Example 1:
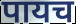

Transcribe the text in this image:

पायच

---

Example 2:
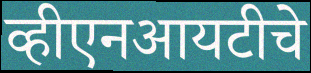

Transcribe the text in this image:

व्हीएनआयटीचे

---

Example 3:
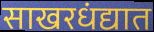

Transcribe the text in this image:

साखरधंद्यात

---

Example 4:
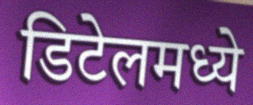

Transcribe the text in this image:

डिटेलमध्ये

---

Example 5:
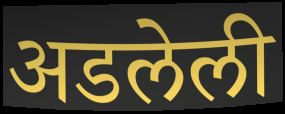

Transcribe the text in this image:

अडलेली